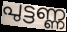
പുട്ടണ്ണ